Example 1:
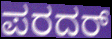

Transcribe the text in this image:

ಪರದರ್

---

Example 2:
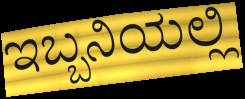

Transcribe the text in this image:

ಇಬ್ಬನಿಯಲ್ಲಿ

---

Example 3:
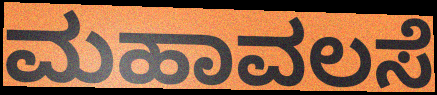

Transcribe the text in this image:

ಮಹಾವಲಸೆ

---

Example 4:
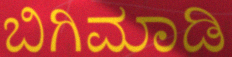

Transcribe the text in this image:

ಬಿಗಿಮಾಡಿ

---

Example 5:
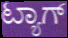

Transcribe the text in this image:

ಟ್ಯಾಗ್